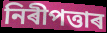
নিৰীপত্তাৰ